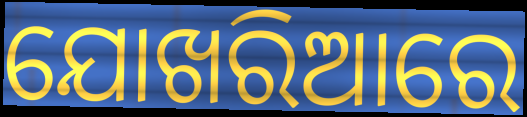
ଯୋଖରିଆରେ